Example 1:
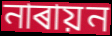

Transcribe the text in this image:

নাৰায়ন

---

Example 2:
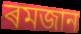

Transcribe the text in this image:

ৰমজান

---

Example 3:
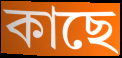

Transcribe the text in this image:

কাছে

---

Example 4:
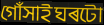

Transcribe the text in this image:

গোঁসাইঘৰটো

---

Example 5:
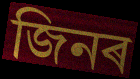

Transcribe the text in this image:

জিনৰ